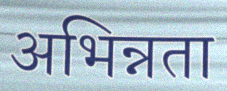
अभिन्नता